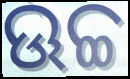
ଊଚ୍ଚ